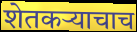
शेतकऱ्याचाच